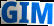
GIM